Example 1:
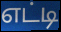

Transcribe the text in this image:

எட்டி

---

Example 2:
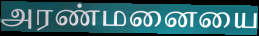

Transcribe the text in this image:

அரண்மனையை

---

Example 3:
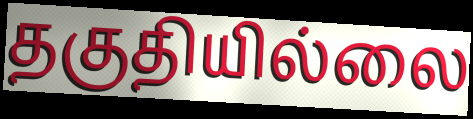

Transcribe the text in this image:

தகுதியில்லை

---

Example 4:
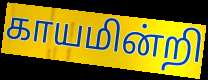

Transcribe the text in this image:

காயமின்றி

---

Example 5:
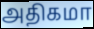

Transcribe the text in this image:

அதிகமா